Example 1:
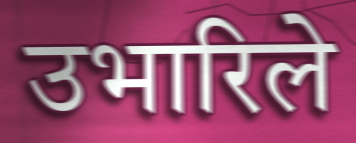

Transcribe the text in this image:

उभारिले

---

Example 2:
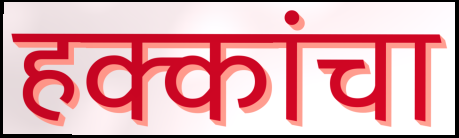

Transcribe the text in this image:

हक्कांचा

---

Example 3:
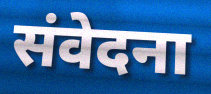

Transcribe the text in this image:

संवेदना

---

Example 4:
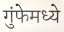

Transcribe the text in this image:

गुंफेमध्ये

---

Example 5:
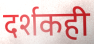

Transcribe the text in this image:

दर्शकही